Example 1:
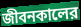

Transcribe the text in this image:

জীবনকালের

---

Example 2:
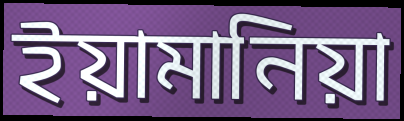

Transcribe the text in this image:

ইয়ামানিয়া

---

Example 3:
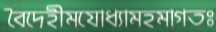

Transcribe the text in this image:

বৈদেহীমযোধ্যামহমাগতঃ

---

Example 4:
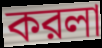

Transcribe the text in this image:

করলা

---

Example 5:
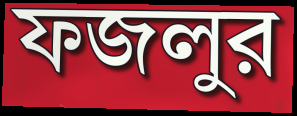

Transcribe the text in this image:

ফজলুর